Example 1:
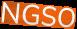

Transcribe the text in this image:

NGSO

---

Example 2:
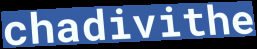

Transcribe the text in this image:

chadivithe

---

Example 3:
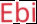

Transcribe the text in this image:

Ebi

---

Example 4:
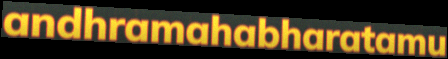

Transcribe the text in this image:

andhramahabharatamu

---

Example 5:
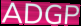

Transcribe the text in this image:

ADGP